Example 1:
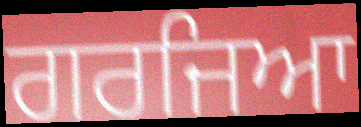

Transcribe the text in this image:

ਗਰਜਿਆ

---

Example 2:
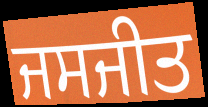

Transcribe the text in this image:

ਜਸਜੀਤ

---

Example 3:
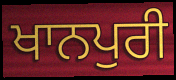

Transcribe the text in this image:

ਖਾਨਪੁਰੀ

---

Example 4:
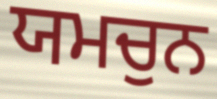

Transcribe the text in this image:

ਯਮਚੁਨ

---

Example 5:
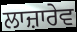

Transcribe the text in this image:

ਲਾਜ਼ਾਰੇਵ